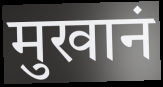
मुखानं